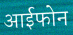
आईफोन